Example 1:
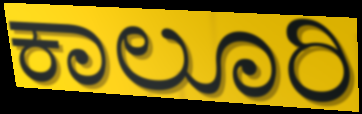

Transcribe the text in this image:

ಕಾಲೂರಿ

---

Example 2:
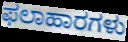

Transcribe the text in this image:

ಫಲಾಹಾರಗಳು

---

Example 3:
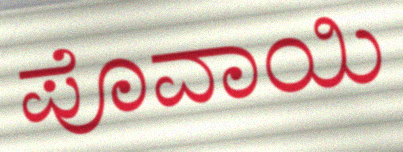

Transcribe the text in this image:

ಪೊವಾಯಿ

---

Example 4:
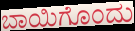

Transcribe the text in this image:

ಬಾಯಿಗೊಂದು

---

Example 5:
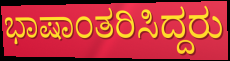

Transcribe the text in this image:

ಭಾಷಾಂತರಿಸಿದ್ದರು